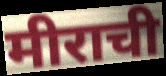
मीराची